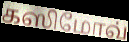
கஸிமோவ்